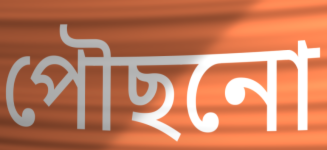
পৌছনো